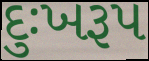
દુઃખરૂપ